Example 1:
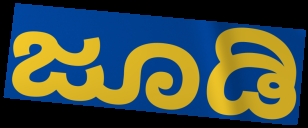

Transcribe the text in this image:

ಜೂಡಿ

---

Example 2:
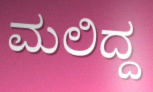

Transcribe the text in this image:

ಮಲಿದ್ದ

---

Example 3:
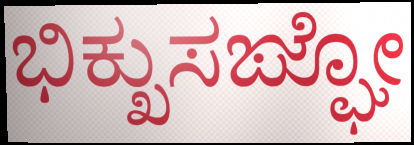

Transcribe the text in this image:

ಭಿಕ್ಖುಸಙ್ಘೋ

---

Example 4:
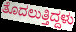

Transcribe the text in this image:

ತೊದಲುತ್ತಿದ್ದಳು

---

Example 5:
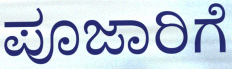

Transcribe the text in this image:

ಪೂಜಾರಿಗೆ